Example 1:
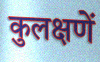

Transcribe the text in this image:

कुलक्षणें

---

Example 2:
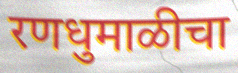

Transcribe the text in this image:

रणधुमाळीचा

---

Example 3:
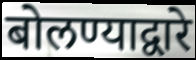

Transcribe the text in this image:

बोलण्याद्वारे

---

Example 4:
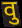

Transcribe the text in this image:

वु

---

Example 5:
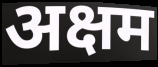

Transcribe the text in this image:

अक्षम